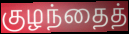
குழந்தைத்